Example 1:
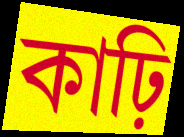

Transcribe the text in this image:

কাঢ়ি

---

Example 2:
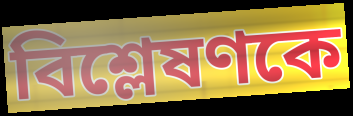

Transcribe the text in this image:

বিশ্লেষণকে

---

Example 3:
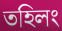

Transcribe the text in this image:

তহিলং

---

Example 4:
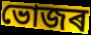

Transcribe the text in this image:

ভোজৰ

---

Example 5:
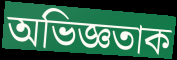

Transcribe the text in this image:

অভিজ্ঞতাক